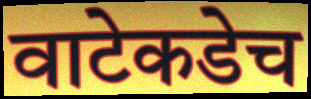
वाटेकडेच